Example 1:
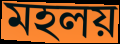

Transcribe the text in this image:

মহলয়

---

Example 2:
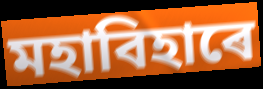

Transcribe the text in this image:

মহাবিহাৰে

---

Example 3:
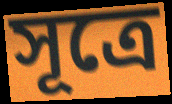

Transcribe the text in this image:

সূত্ৰে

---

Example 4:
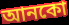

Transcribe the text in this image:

আনকো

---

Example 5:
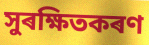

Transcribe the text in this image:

সুৰক্ষিতকৰণ